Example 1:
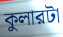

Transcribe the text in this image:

কুলারটা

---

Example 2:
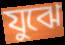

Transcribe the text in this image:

যুঝে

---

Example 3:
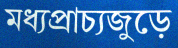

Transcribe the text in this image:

মধ্যপ্রাচ্যজুড়ে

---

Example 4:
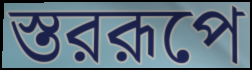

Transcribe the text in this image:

স্তররূপে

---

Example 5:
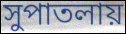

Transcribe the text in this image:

সুপাতলায়